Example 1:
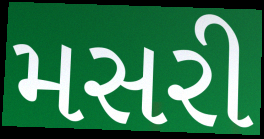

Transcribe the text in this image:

મસરી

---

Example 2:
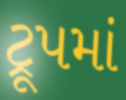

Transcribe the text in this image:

ટ્રૂપમાં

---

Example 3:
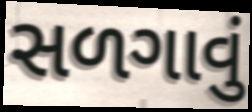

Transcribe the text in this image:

સળગાવું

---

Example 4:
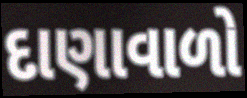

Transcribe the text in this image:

દાણાવાળો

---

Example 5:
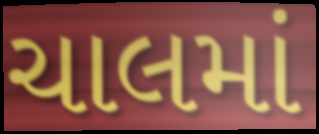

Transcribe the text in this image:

ચાલમાં